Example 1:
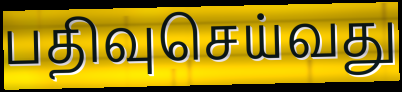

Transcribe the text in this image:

பதிவுசெய்வது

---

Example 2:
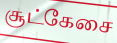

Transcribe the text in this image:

சூட்கேசை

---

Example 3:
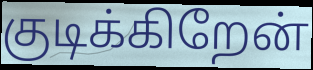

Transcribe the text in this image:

குடிக்கிறேன்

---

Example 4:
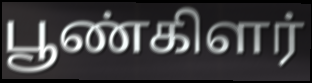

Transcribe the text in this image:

பூண்கிளர்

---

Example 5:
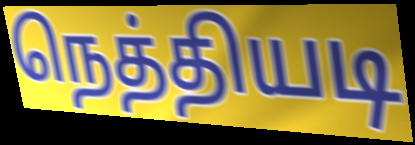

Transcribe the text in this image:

நெத்தியடி